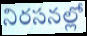
నిరసనల్లో